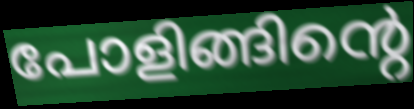
പോളിങ്ങിന്റെ